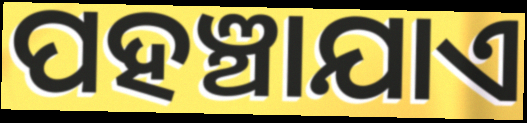
ପହଞ୍ଚାଯାଏ